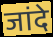
जांदे